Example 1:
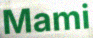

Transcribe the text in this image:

Mami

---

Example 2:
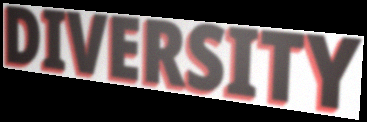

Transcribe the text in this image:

DIVERSITY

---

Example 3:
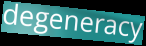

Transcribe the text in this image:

degeneracy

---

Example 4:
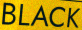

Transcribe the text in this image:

BLACK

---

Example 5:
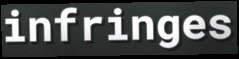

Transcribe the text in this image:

infringes